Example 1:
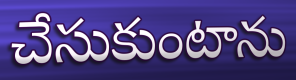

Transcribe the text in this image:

చేసుకుంటాను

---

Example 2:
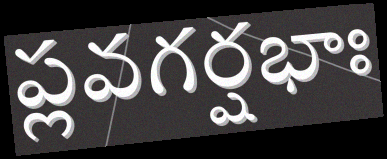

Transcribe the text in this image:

ప్లవగర్షభాః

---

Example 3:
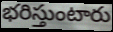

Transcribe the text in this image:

భరిస్తుంటారు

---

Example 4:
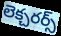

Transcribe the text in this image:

లెక్చరర్స్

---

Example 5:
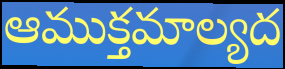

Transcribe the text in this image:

ఆముక్తమాల్యద